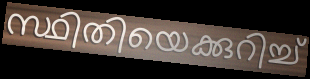
സ്ഥിതിയെക്കുറിച്ച്